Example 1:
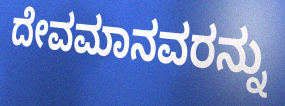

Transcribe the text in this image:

ದೇವಮಾನವರನ್ನು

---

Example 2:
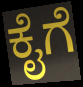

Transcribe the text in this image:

ಕೈಗೆ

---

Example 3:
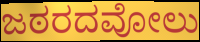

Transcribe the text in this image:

ಜಠರದವೋಲು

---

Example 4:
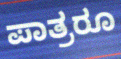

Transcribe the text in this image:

ಪಾತ್ರರೂ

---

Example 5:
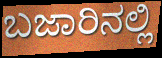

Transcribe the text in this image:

ಬಜಾರಿನಲ್ಲಿ